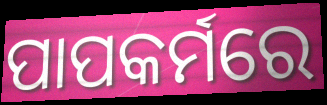
ପାପକର୍ମରେ